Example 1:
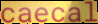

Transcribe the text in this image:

caecal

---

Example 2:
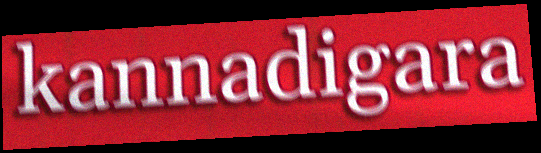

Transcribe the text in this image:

kannadigara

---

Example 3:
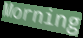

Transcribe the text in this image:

Morning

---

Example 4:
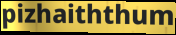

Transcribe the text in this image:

pizhaiththum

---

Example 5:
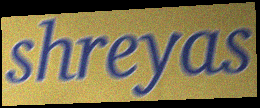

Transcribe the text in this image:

shreyas